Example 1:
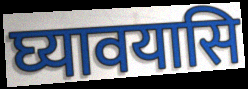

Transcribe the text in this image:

घ्यावयासि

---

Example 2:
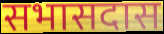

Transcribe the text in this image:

सभासदास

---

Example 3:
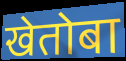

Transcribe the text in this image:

खेतोबा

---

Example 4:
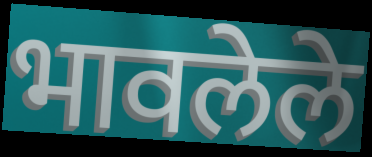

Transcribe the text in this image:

भावलेले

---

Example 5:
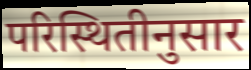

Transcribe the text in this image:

परिस्थितीनुसार